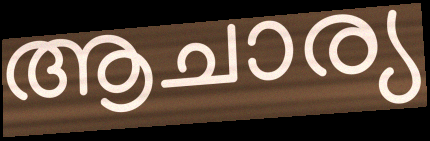
ആചാര്യ